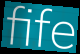
fife